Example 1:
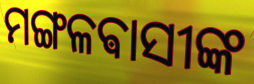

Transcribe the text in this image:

ମଙ୍ଗଳଵାସୀଙ୍କ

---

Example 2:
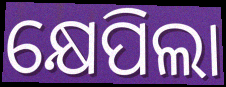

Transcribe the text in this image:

କ୍ଷେପିଲା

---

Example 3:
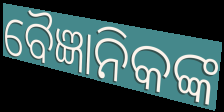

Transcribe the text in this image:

ବୈଜ୍ଞାନିକଙ୍କ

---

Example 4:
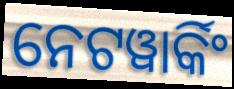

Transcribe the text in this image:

ନେଟୱାର୍କିଂ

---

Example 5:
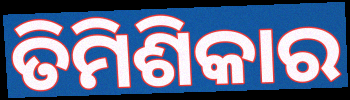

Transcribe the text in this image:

ତିମିଶିକାର